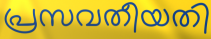
പ്രസവതീയതി